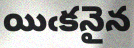
యిఁకనైన